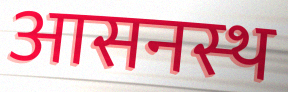
आसनस्थ